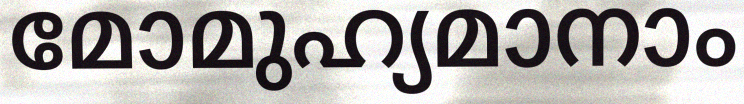
മോമുഹ്യമാനാം